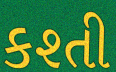
કશ્તી